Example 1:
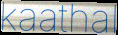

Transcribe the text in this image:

kaathal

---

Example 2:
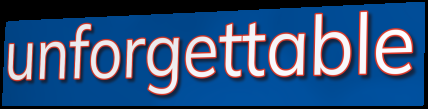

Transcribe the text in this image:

unforgettable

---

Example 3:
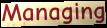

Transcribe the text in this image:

Managing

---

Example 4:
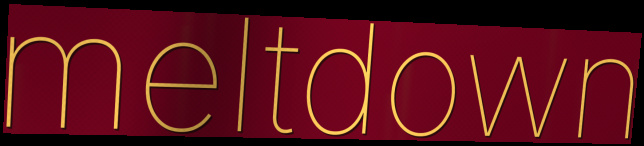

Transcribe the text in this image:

meltdown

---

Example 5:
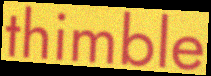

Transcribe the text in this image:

thimble